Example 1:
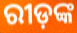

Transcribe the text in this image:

ରୀଡ଼ଙ୍କ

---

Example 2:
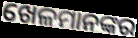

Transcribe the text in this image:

ଖେଳମାନଙ୍କର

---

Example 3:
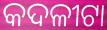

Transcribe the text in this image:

କଦଳୀଟା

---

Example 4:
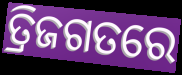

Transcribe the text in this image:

ତ୍ରିଜଗତରେ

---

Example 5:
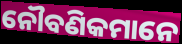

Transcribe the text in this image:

ନୌବଣିକମାନେ